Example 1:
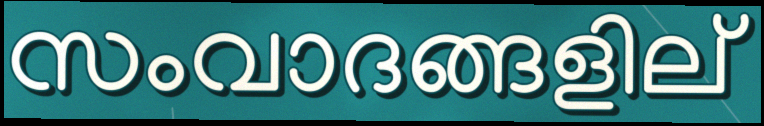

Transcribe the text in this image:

സംവാദങ്ങളില്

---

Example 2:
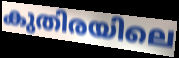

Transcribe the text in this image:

കുതിരയിലെ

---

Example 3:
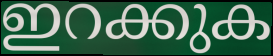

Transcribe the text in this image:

ഇറക്കുക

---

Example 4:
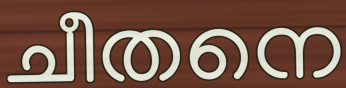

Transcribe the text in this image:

ചീതനെ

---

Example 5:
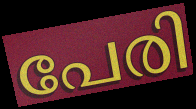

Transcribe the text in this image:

പേരി